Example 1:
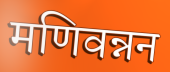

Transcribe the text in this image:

मणिवन्नन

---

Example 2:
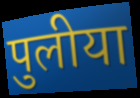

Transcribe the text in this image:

पुलीया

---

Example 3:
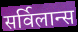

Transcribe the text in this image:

सर्विलान्स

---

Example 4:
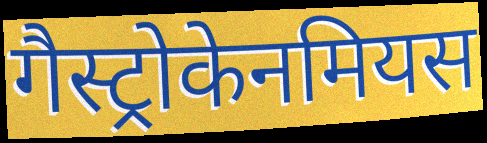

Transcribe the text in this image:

गैस्ट्रोकेनमियस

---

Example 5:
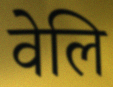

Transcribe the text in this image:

वेलि